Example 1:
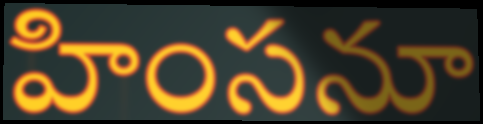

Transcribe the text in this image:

హింసనూ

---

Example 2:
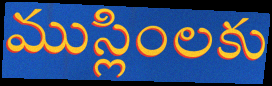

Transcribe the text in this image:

ముస్లింలకు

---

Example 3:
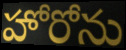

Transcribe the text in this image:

హోరోను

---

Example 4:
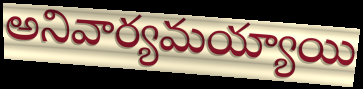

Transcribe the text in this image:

అనివార్యమయ్యాయి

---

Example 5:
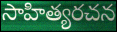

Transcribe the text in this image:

సాహిత్యరచన